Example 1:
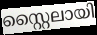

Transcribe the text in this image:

സ്റ്റൈലായി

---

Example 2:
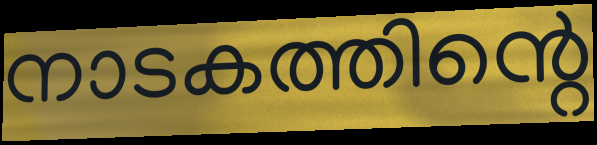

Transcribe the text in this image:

നാടകത്തിന്റെ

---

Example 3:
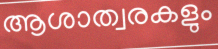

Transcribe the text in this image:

ആശാത്വരകളും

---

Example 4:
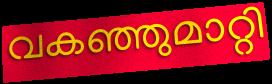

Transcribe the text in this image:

വകഞ്ഞുമാറ്റി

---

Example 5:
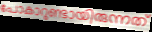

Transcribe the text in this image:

പോകാറുണ്ടായിരുന്നത്